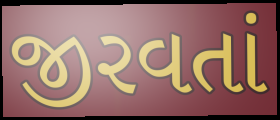
જીરવતાં